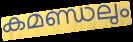
കമണ്ഡലും